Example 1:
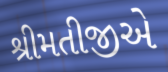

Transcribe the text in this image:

શ્રીમતીજીએ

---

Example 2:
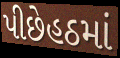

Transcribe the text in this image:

પીછેહઠમાં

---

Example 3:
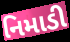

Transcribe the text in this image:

નિમાડી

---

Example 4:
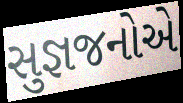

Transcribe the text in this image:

સુજ્ઞજનોએ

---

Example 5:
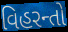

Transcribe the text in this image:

વિહરન્તો